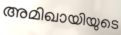
അമിഖായിയുടെ